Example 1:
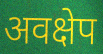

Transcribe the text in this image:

अवक्षेप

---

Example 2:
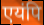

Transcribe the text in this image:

एयंपि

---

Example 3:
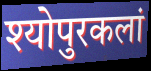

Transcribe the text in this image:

श्योपुरकलां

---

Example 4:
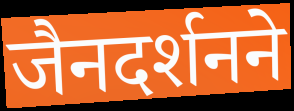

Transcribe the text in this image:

जैनदर्शनने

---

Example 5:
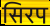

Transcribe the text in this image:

सिरप